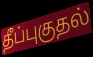
தீப்புகுதல்